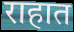
राहात